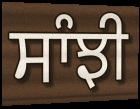
ਸਾੰਝੀ